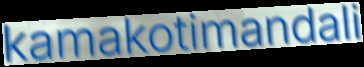
kamakotimandali